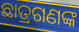
ଛାତ୍ରଗଣଙ୍କ